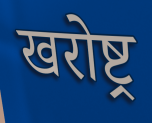
खरोष्ट्र